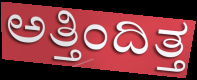
ಅತ್ತಿಂದಿತ್ತ